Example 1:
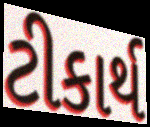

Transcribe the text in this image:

ટીકાર્થ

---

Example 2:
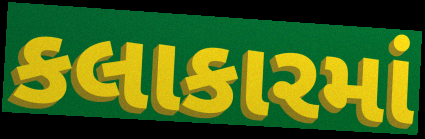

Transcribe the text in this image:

કલાકારમાં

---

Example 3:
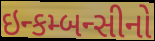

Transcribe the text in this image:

ઇન્કમ્બન્સીનો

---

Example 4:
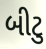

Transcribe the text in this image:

બીટુ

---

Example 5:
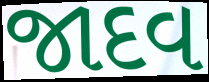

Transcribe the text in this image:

જાદવ